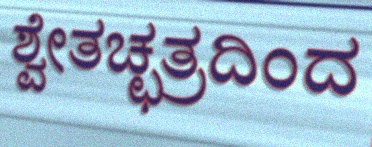
ಶ್ವೇತಚ್ಛತ್ರದಿಂದ